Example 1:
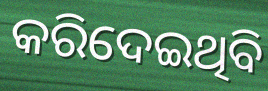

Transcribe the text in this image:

କରିଦେଇଥିବି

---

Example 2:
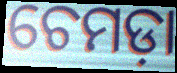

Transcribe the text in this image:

ଚେମଡ଼ା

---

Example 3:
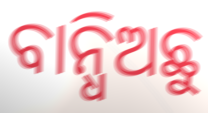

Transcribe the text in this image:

ବାନ୍ଧିଅଛୁ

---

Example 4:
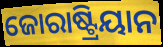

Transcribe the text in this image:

ଜୋରାଷ୍ଟ୍ରିୟାନ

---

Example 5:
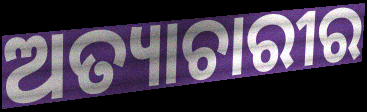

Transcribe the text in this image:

ଅତ୍ୟାଚାରୀର